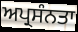
ਅਪ੍ਰਸੰਨਤਾ